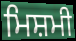
ਮਿਸ਼ਮੀ